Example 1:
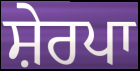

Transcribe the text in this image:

ਸ਼ੇਰਪਾ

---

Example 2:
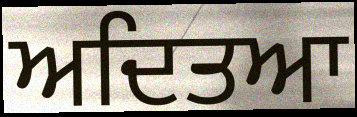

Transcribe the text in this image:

ਅਦਿਤਆ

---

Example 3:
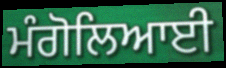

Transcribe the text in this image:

ਮੰਗੋਲਿਆਈ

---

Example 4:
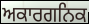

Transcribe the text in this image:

ਅਕਾਰਗਨਿਕ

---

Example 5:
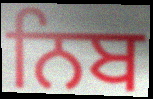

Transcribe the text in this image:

ਨਿਬ